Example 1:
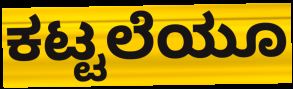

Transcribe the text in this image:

ಕಟ್ಟಲೆಯೂ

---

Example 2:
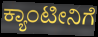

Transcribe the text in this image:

ಕ್ಯಾಂಟೀನಿಗೆ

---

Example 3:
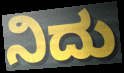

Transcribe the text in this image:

ನಿದು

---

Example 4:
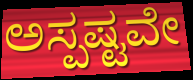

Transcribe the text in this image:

ಅಸ್ಪಷ್ಟವೇ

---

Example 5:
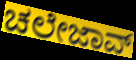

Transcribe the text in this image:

ಚಲೇಜಾವ್